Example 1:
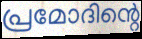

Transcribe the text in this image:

പ്രമോദിന്റെ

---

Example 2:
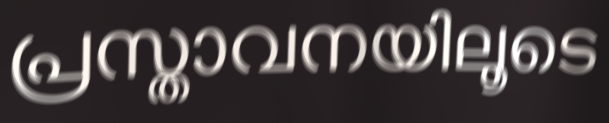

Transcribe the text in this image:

പ്രസ്താവനയിലൂടെ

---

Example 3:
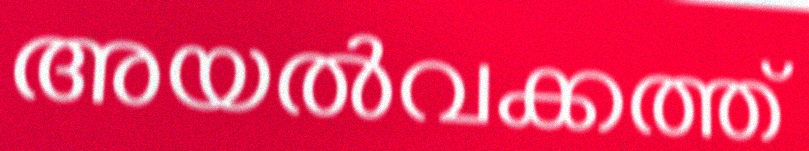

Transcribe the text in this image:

അയൽവക്കത്ത്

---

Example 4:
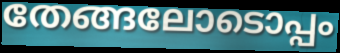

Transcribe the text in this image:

തേങ്ങലോടൊപ്പം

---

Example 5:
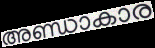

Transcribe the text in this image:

അണ്ഡാകാര